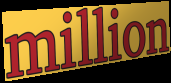
million